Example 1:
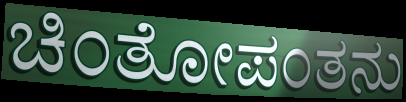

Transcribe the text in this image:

ಚಿಂತೋಪಂತನು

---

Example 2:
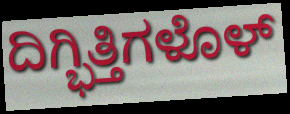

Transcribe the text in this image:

ದಿಗ್ಭಿತ್ತಿಗಳೊಳ್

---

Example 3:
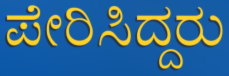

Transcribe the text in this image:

ಪೇರಿಸಿದ್ದರು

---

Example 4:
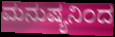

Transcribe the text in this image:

ಮನುಷ್ಯನಿಂದ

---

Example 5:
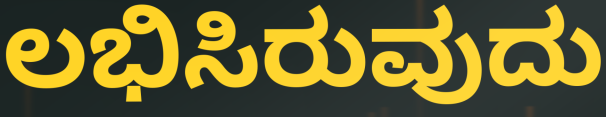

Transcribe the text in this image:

ಲಭಿಸಿರುವುದು